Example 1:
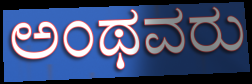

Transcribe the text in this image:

ಅಂಥವರು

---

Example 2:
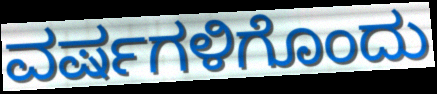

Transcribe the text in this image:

ವರ್ಷಗಳಿಗೊಂದು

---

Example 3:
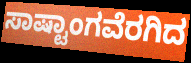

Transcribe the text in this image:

ಸಾಷ್ಟಾಂಗವೆರಗಿದ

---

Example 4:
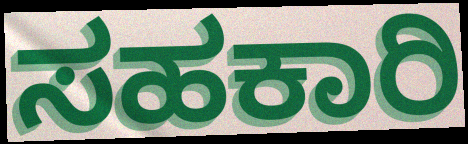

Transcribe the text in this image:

ಸಹಕಾರಿ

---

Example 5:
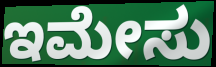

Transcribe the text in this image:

ಇಮೇಸು